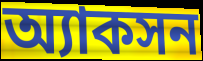
অ্যাকসন